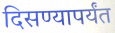
दिसण्यापर्यंत